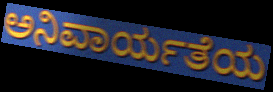
ಅನಿವಾರ್ಯತೆಯ